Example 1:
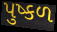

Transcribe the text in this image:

પુષ્કળ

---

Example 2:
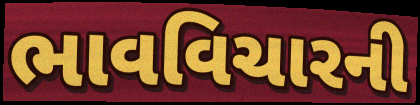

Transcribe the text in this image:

ભાવવિચારની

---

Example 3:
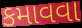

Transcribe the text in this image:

કમાવવા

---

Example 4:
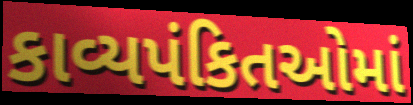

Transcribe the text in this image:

કાવ્યપંકિતઓમાં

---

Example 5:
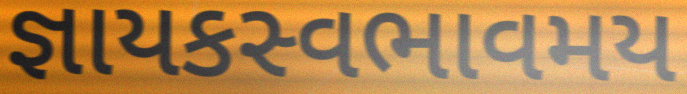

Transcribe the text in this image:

જ્ઞાયકસ્વભાવમય